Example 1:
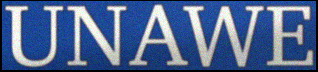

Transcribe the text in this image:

UNAWE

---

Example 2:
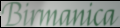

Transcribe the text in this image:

Birmanica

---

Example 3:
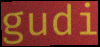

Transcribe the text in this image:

gudi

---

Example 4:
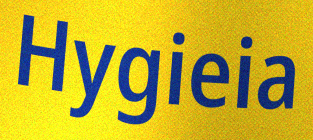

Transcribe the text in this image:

Hygieia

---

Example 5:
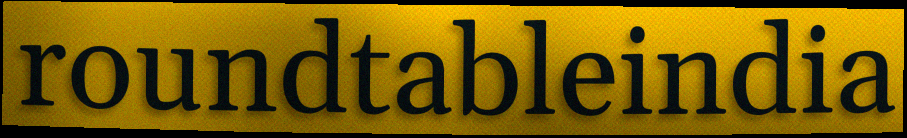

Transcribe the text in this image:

roundtableindia